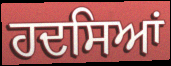
ਹਦਸਿਆਂ